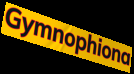
Gymnophiona